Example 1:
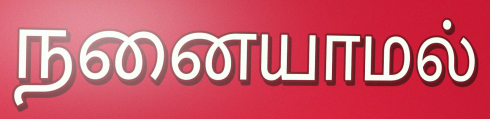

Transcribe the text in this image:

நனையாமல்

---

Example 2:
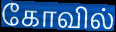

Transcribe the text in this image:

கோவில்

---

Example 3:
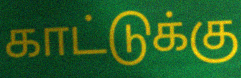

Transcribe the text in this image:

காட்டுக்கு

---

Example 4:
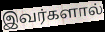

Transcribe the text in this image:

இவர்களால்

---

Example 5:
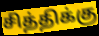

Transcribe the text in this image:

சித்திக்கு